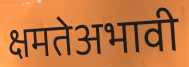
क्षमतेअभावी